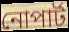
নোপার্ট